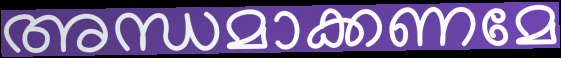
അന്ധമാക്കണമേ